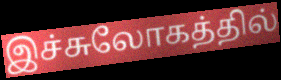
இச்சுலோகத்தில்